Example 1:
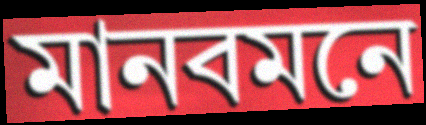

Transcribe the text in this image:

মানবমনে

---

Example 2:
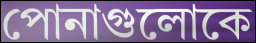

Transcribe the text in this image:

পোনাগুলোকে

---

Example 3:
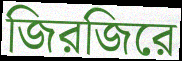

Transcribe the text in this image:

জিরজিরে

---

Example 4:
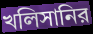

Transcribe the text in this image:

খলিসানির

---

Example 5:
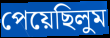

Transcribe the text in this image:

পেয়েছিলুম